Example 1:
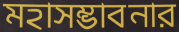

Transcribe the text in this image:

মহাসম্ভাবনার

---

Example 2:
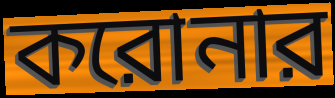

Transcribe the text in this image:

করোনার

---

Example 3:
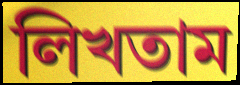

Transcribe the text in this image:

লিখতাম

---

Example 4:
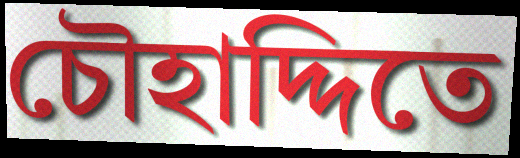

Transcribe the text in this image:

চৌহাদ্দিতে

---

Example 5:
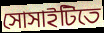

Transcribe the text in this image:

সোসাইটিতে